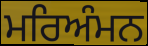
ਮਰਿਅੰਮਨ